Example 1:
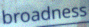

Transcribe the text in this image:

broadness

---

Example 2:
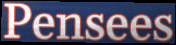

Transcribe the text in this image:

Pensees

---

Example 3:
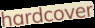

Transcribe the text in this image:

hardcover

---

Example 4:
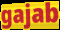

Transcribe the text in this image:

gajab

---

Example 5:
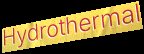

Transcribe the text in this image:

Hydrothermal